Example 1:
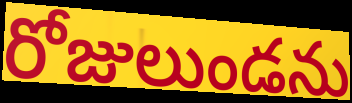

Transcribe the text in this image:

రోజులుండను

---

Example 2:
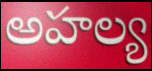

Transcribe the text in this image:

అహల్య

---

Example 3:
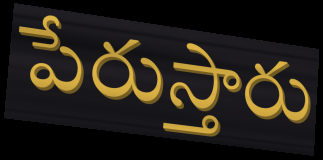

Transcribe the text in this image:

పేరుస్తారు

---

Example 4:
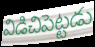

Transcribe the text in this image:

విడిచిపెట్టడు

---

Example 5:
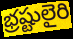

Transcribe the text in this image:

భ్రష్టులైరి